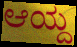
ಆಯ್ದ